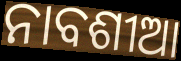
ନାବଶୀଆ